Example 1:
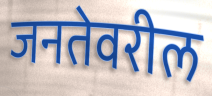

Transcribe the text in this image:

जनतेवरील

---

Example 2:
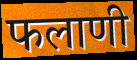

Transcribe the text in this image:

फलाणी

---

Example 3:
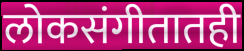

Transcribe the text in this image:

लोकसंगीतातही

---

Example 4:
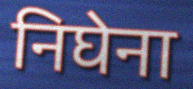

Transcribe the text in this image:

निघेना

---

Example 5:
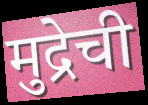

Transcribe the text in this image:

मुद्रेची